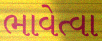
ભાવેત્વા